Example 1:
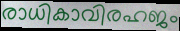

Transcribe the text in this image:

രാധികാവിരഹജം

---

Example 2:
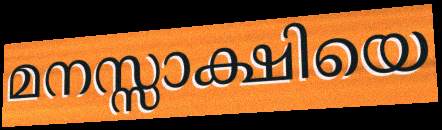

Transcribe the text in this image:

മനസ്സാക്ഷിയെ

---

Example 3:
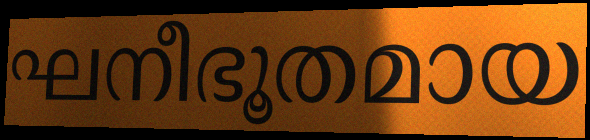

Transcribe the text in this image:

ഘനീഭൂതമായ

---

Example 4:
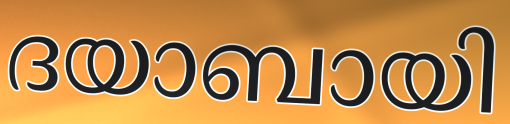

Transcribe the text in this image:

ദയാബായി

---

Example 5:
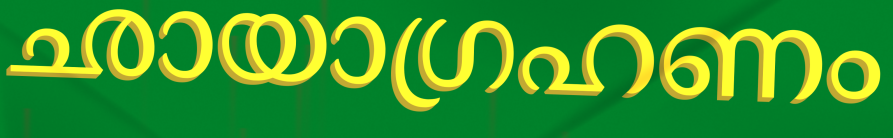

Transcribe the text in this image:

ഛായാഗ്രഹണം